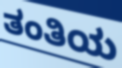
ತಂತಿಯ